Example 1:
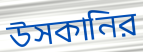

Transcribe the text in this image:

উসকানির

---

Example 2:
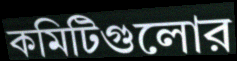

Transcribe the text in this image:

কমিটিগুলোর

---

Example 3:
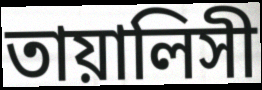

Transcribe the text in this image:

তায়ালিসী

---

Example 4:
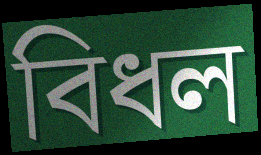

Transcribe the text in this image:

বিধল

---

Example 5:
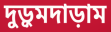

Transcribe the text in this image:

দুড়ুমদাড়াম